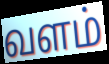
வளம்